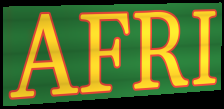
AFRI